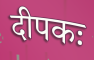
दीपकः